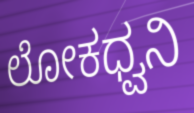
ಲೋಕಧ್ವನಿ